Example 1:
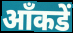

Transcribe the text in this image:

आँकडें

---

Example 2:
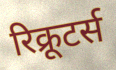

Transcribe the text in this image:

रिक्रूटर्स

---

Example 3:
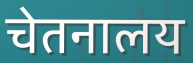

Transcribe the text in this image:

चेतनालय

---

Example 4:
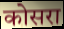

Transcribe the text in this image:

कोसरा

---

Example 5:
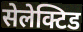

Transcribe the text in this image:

सेलेक्टिड